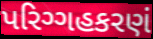
પરિગ્ગહકરણં